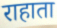
राहाता